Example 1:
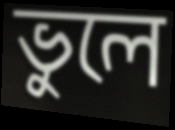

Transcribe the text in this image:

ভুলে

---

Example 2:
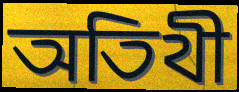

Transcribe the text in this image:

অতিথী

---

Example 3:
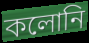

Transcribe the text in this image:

কলোনি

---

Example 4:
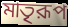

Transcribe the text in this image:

মাতৃরূপ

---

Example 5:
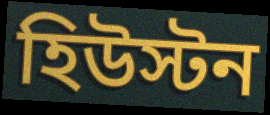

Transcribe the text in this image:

হিউস্টন